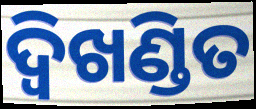
ଦ୍ଵିଖଣ୍ଡିତ